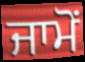
ਜਾਮੋਂ